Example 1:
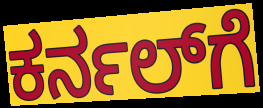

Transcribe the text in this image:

ಕರ್ನಲ್‌ಗೆ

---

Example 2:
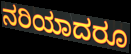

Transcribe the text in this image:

ನರಿಯಾದರೂ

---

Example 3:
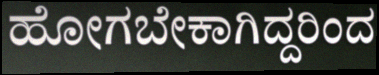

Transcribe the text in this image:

ಹೋಗಬೇಕಾಗಿದ್ದರಿಂದ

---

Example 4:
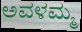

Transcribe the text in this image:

ಅವಳಮ್ಮ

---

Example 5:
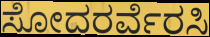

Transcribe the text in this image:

ಸೋದರರ್ವೆರಸಿ